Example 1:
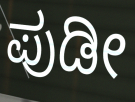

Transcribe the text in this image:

ಪುಡೀ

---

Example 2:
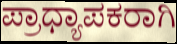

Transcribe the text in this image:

ಪ್ರಾಧ್ಯಾಪಕರಾಗಿ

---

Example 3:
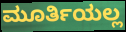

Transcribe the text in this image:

ಮೂರ್ತಿಯಲ್ಲ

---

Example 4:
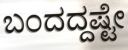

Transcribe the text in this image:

ಬಂದದ್ದಷ್ಟೇ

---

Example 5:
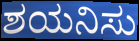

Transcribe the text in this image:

ಶಯನಿಸು